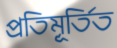
প্ৰতিমূৰ্তিত